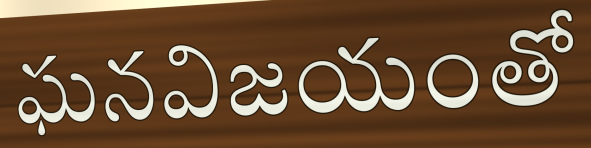
ఘనవిజయంతో